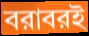
বরাবরই